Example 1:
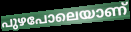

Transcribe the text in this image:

പുഴപോലെയാണ്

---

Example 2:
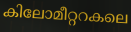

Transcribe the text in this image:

കിലോമീറ്ററകലെ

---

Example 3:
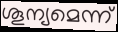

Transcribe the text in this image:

ശൂന്യമെന്ന്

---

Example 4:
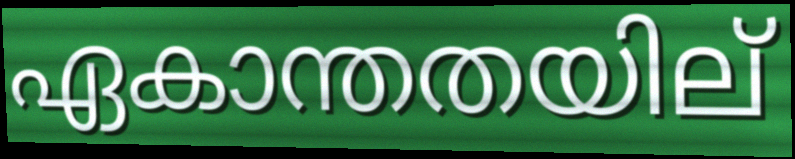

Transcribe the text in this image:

ഏകാന്തതയില്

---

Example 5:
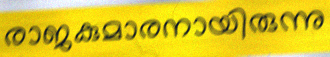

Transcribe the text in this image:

രാജകുമാരനായിരുന്നു